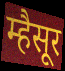
म्हैसूर